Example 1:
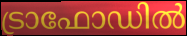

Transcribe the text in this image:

ട്രാഫോഡിൽ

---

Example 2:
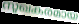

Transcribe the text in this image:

സുഖകരമായ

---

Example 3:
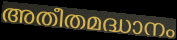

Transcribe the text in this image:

അതീതമദ്ധാനം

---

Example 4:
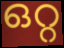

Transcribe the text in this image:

ഒറ്റ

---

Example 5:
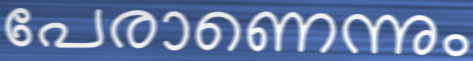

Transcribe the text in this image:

പേരാണെന്നും